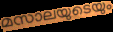
മസാലയുടെയും